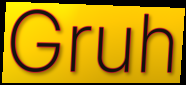
Gruh